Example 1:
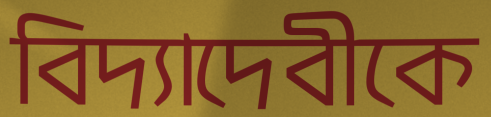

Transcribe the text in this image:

বিদ্যাদেবীকে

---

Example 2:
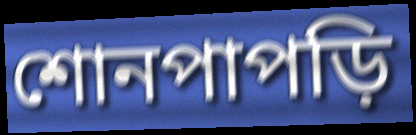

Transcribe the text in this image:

শোনপাপড়ি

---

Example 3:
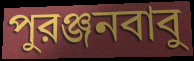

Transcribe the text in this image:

পুরঞ্জনবাবু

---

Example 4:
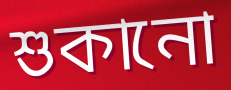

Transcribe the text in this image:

শুকানো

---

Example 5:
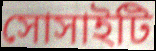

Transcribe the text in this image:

সোসাইটি